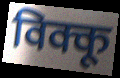
विक्कू